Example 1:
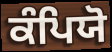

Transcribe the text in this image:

ਕੰਪਿਯੋ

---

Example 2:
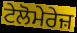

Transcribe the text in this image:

ਟੇਲੋਮੇਰੇਜ਼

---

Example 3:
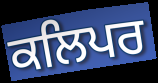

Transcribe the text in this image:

ਕਲਿਪਰ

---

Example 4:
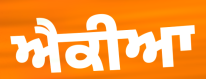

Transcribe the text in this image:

ਐਕੀਆ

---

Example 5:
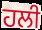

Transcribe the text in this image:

ਹਲੀ